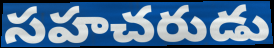
సహచరుడు